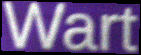
Wart